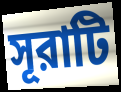
সূরাটি